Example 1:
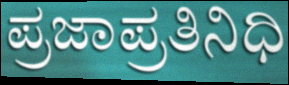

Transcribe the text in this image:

ಪ್ರಜಾಪ್ರತಿನಿಧಿ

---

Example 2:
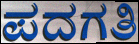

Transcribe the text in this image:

ಪದಗತಿ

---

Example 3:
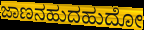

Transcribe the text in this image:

ಜಾಣನಹುದಹುದೋ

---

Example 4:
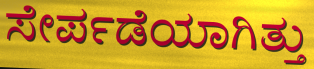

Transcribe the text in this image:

ಸೇರ್ಪಡೆಯಾಗಿತ್ತು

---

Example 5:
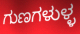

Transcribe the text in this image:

ಗುಣಗಳುಳ್ಳ